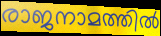
രാജനാമത്തിൽ